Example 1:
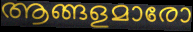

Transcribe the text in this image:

ആങ്ങളമാരോ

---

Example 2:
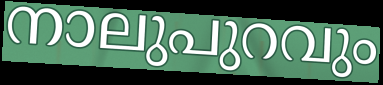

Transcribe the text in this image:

നാലുപുറവും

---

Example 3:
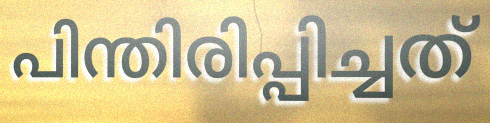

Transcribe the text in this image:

പിന്തിരിപ്പിച്ചത്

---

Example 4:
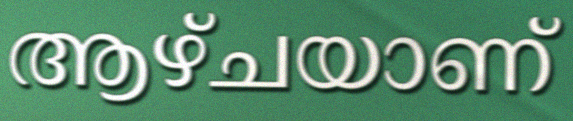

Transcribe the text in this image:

ആഴ്ചയാണ്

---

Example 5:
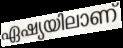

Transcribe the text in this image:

ഏഷ്യയിലാണ്